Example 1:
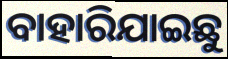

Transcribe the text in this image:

ବାହାରିଯାଇଛୁ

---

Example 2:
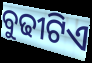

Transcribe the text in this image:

ବୁଢୀଟିଏ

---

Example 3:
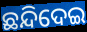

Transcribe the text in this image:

ଛନ୍ଦିଦେଇ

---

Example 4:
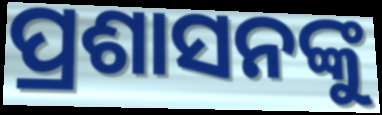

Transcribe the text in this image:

ପ୍ରଶାସନଙ୍କୁ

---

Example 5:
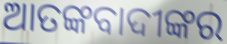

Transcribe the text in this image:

ଆତଙ୍କବାଦୀଙ୍କର